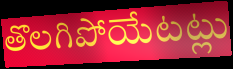
తొలగిపోయేటట్లు